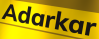
Adarkar